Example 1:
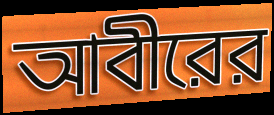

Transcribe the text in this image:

আবীরের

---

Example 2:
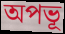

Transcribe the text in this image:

অপভূ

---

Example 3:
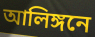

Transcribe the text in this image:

আলিঙ্গনে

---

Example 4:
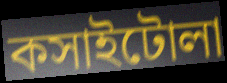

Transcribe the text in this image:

কসাইটোলা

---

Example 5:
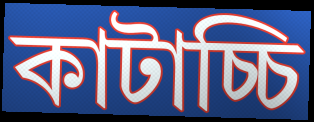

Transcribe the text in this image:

কাটাচ্চি